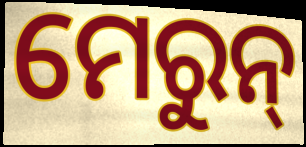
ମେରୁନ୍